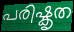
പരിഷ്കൃത